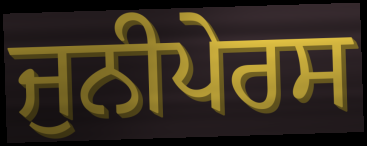
ਜੁਨੀਪੇਰਸ